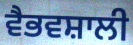
ਵੈਭਵਸ਼ਾਲੀ